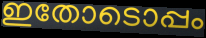
ഇതോടൊപ്പം